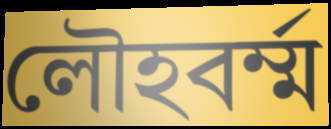
লৌহবর্ম্ম